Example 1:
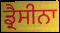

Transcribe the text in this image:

ਡ੍ਰੈਸੀਨਾ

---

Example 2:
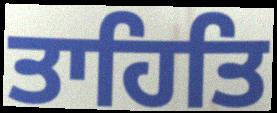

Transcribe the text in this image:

ਤਾਹਿਤਿ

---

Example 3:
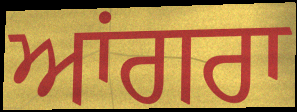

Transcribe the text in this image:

ਆਂਗਰਾ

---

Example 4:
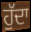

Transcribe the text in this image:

ਹੁੱਦਾ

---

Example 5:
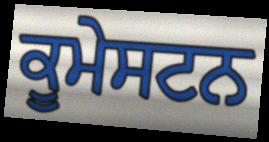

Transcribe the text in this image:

ਕੂਮੇਸਟਨ